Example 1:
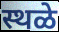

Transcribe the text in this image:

स्थळे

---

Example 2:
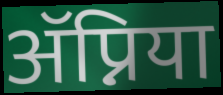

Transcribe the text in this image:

ॲप्निया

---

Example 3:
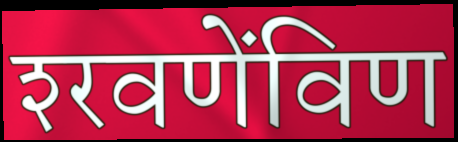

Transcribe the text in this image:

श्रवणेंविण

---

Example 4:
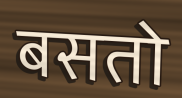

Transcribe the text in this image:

बसतो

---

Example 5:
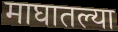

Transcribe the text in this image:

माघातल्या